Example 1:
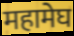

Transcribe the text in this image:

महामेघ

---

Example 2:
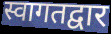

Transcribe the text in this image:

स्वागतद्वार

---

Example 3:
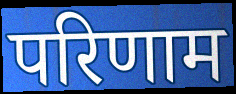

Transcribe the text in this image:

परिणाम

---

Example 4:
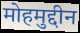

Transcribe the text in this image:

मोहमुद्दीन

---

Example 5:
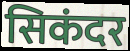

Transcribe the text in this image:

सिकंदर